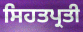
ਸਿਹਤਪ੍ਰਤੀ